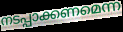
നടപ്പാക്കണമെന്ന